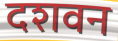
दशवन